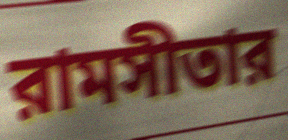
রামসীতার